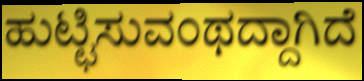
ಹುಟ್ಟಿಸುವಂಥದ್ದಾಗಿದೆ